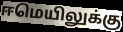
ஈமெயிலுக்கு